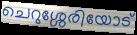
ചെറുശ്ശേരിയോട്